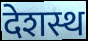
देशस्थ